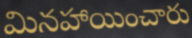
మినహాయించారు